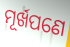
ମୂର୍ଖପଣେ